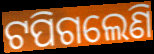
ଟପିଗଲେଣି